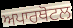
ਅਪਾਰਥੋਟਲ